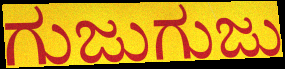
ಗುಜುಗುಜು